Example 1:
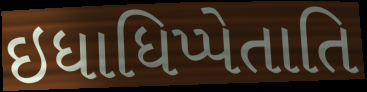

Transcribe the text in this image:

ઇધાધિપ્પેતાતિ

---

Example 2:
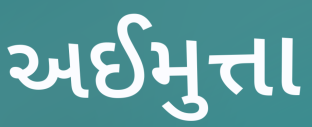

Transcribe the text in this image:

અઈમુત્તા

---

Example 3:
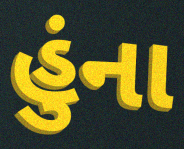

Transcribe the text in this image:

હુંના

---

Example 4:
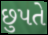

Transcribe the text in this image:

છુપતે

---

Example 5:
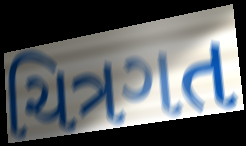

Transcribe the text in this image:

ચિત્રગત